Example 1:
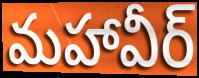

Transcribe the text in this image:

మహావీర్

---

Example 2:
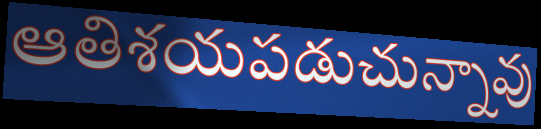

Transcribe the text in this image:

ఆతిశయపడుచున్నావు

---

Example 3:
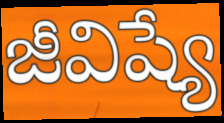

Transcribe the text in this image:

జీవిష్యే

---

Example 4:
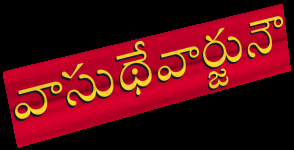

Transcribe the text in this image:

వాసుథేవార్జునౌ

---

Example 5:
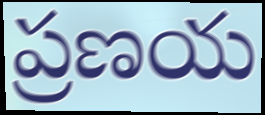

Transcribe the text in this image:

ప్రణయ